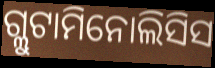
ଗ୍ଲୁଟାମିନୋଲିସିସ